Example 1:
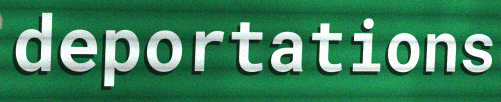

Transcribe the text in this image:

deportations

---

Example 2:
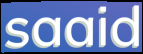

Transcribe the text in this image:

saaid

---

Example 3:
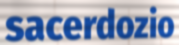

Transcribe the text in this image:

sacerdozio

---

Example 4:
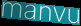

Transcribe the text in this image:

manvu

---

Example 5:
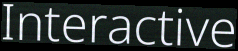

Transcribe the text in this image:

Interactive